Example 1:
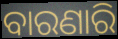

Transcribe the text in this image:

ବାରଣାରି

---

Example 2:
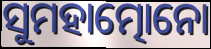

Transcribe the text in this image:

ସୁମହାତ୍ମୋନୋ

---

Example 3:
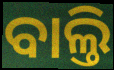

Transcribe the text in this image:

ବାଲ୍ତି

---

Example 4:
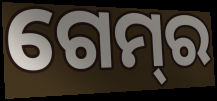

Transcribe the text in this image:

ଗେମ୍‌ର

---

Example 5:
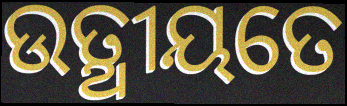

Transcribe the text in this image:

ଉତ୍ଥୀୟତେ